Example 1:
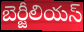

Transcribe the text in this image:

బెర్జీలియస్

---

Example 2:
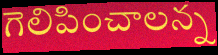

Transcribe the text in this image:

గెలిపించాలన్న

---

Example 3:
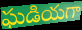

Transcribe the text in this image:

ఘడియగా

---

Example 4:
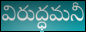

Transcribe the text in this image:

విరుద్ధమనీ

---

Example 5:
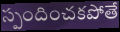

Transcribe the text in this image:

స్పందించకపోతే